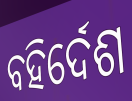
ବହିର୍ଦେଶ